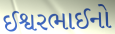
ઈશ્વરભાઈનો